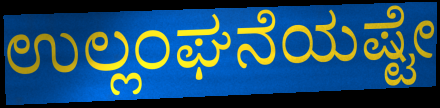
ಉಲ್ಲಂಘನೆಯಷ್ಟೇ